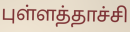
புள்ளத்தாச்சி